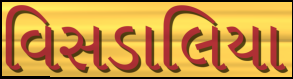
વિસડાલિયા